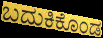
ಬದುಕಿಕೊಂಡ